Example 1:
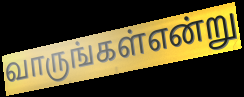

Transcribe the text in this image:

வாருங்கள்என்று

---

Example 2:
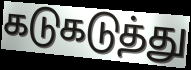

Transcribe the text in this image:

கடுகடுத்து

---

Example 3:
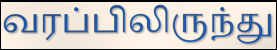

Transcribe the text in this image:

வரப்பிலிருந்து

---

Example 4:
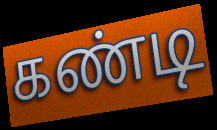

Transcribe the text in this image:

கண்டி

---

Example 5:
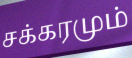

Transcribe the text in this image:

சக்கரமும்